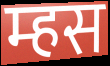
म्हस